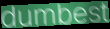
dumbest